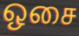
ஒசை